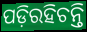
ପଡ଼ିରହିଚନ୍ତି